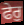
ਫੇਰੁ